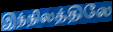
இந்நிலத்திலே